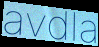
avdla